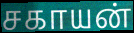
சகாயன்